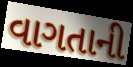
વાગતાની